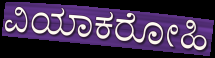
ವಿಯಾಕರೋಹಿ